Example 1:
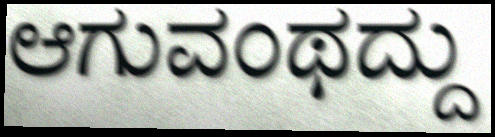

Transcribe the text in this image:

ಆಗುವಂಥದ್ದು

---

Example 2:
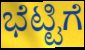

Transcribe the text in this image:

ಭೆಟ್ಟಿಗೆ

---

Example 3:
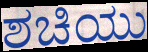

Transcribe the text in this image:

ಶಚಿಯು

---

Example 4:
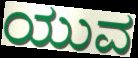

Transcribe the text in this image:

ಯುವ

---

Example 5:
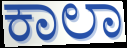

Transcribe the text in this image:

ಕಾಲಾ